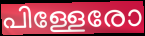
പിള്ളേരോ